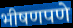
भीषणपणे